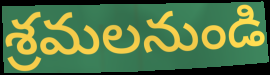
శ్రమలనుండి